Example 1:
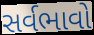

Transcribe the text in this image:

સર્વભાવો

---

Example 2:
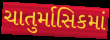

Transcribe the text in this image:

ચાતુર્માસિકમાં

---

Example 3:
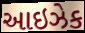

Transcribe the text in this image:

આઇઝેક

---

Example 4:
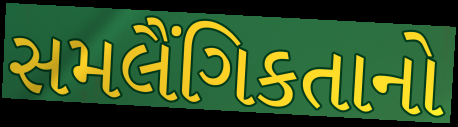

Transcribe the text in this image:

સમલૈંગિકતાનો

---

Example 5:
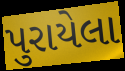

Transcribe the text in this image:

પુરાયેલા